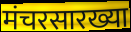
मंचरसारख्या